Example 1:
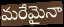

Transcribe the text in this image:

మరేమైనా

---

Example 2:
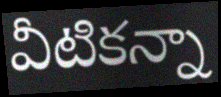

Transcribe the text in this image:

వీటికన్నా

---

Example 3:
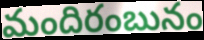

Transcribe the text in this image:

మందిరంబునం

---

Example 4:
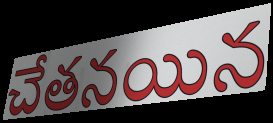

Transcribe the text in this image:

చేతనయిన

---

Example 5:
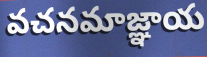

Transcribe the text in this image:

వచనమాజ్ఞాయ